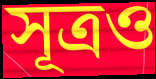
সূত্রও